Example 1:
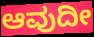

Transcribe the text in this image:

ಆವುದೀ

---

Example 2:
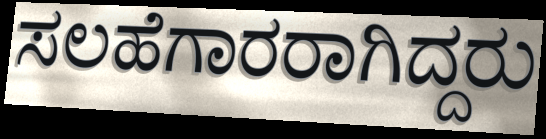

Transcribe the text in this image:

ಸಲಹೆಗಾರರಾಗಿದ್ದರು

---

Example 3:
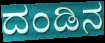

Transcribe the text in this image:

ದಂಡಿನ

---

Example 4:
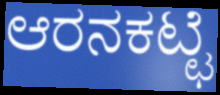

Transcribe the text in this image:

ಆರನಕಟ್ಟೆ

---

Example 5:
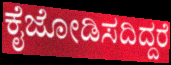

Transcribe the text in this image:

ಕೈಜೋಡಿಸದಿದ್ದರೆ